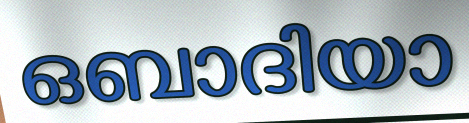
ഒബാദിയാ